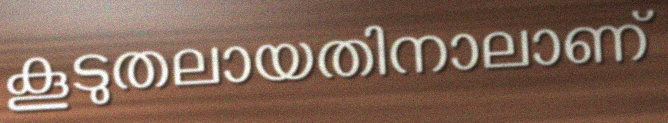
കൂടുതലായതിനാലാണ്